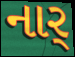
નાર્